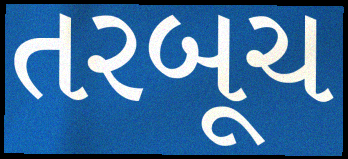
તરબૂચ